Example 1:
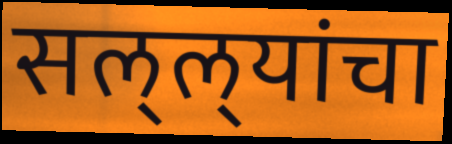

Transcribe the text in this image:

सल्ल्यांचा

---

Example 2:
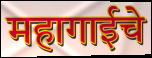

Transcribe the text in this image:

महागाईचे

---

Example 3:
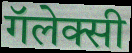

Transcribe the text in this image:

गॅलेक्सी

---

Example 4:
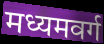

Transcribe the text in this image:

मध्यमवर्ग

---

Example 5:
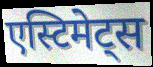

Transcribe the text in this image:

एस्टिमेट्स